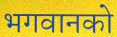
भगवानको